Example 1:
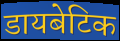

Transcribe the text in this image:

डायबेटिक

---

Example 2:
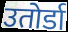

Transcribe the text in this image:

उतोर्डा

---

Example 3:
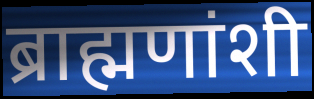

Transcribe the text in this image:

ब्राह्मणांशी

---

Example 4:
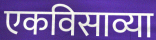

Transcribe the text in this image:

एकविसाव्या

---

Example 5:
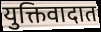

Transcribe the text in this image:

युक्तिवादात